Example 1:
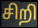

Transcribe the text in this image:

சிறி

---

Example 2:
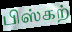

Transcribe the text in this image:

பிஸ்கற்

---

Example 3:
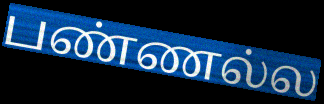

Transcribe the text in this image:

பண்ணல்ல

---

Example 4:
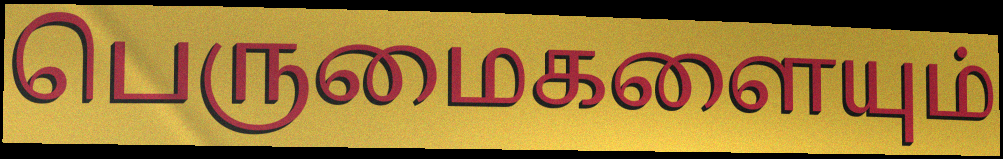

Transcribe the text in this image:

பெருமைகளையும்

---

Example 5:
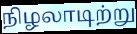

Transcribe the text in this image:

நிழலாடிற்று